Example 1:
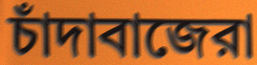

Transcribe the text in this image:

চাঁদাবাজেরা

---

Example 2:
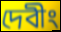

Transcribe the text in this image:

দেবীং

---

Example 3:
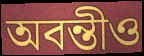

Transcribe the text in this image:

অবন্তীও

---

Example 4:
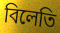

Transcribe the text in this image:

বিলেতি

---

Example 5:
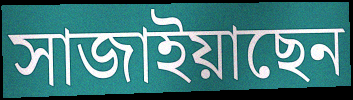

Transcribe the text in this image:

সাজাইয়াছেন